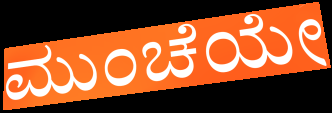
ಮುಂಚೆಯೇ